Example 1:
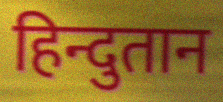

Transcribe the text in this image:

हिन्दुतान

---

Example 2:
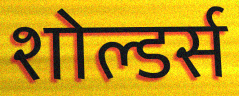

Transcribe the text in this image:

शोल्डर्स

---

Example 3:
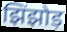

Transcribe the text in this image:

झिंझोड़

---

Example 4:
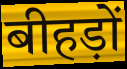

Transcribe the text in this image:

बीहड़ों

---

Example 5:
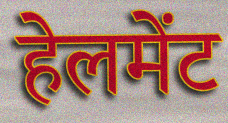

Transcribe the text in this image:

हेलमेंट